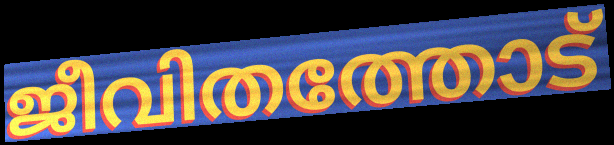
ജീവിതത്തോട്